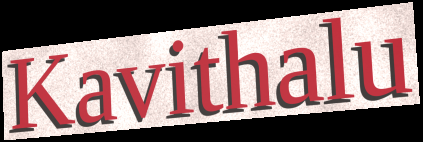
Kavithalu